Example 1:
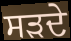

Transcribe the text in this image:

ਸੜਦੇ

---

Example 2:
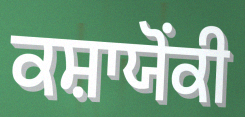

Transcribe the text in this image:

ਕਸ਼ਾਯੋਂਕੀ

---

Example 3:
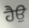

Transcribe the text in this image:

ਹੈਉ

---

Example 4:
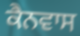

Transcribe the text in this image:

ਕੈਨਵਾਸ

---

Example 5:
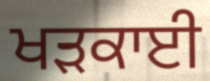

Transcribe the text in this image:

ਖੜਕਾਈ